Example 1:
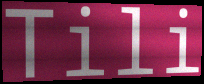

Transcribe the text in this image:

Tili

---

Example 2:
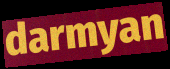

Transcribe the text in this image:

darmyan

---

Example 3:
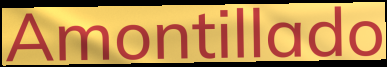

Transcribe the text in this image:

Amontillado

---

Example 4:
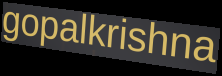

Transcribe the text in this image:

gopalkrishna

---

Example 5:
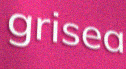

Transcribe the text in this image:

grisea